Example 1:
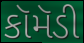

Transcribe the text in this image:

કૉમૅડી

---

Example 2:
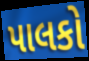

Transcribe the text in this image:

પાલકો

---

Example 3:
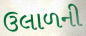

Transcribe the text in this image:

ઉલાળની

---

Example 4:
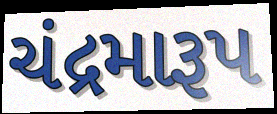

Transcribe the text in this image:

ચંદ્રમારૂપ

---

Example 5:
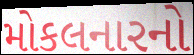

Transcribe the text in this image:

મોકલનારનો